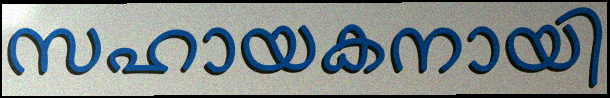
സഹായകനായി